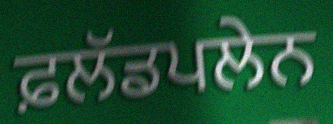
ਫ਼ਲੱਡਪਲੇਨ